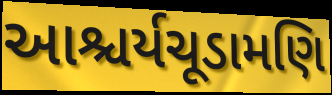
આશ્ચર્યચૂડામણિ